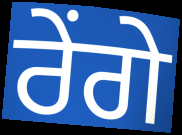
ਰੇਂਗੇ